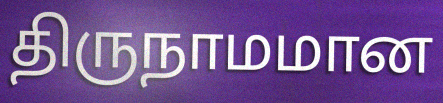
திருநாமமான